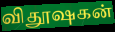
விதூஷகன்